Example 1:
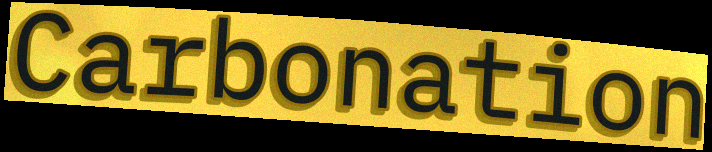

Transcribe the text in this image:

Carbonation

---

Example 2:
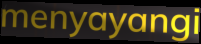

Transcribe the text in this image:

menyayangi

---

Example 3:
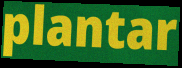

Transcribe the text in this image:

plantar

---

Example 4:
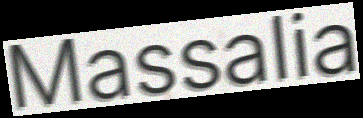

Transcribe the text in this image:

Massalia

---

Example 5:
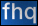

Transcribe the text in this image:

fhq